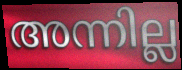
അന്നില്ല